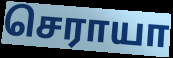
செராயா